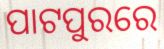
ପାଟପୁରରେ